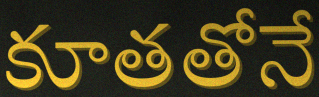
కూతతోనే